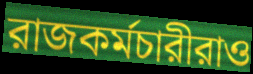
রাজকর্মচারীরাও